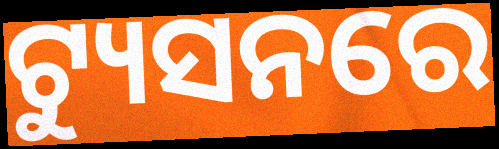
ଟ୍ୟୁସନରେ